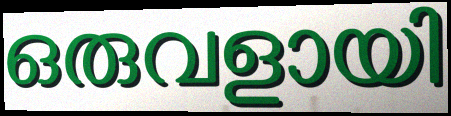
ഒരുവളായി